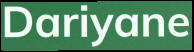
Dariyane